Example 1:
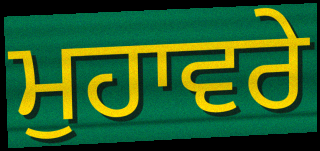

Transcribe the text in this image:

ਮੁਹਾਵਰੇ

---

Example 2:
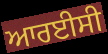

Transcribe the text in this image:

ਆਰਈਸੀ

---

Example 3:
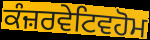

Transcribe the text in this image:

ਕੰਜ਼ਰਵੇਟਿਵਹੋਮ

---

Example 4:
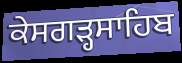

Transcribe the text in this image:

ਕੇਸਗੜ੍ਹਸਾਹਿਬ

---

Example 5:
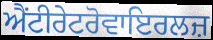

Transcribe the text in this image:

ਐਂਟੀਰੇਟਰੋਵਾਇਰਲਜ਼